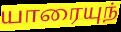
யாரையுந்